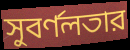
সুবর্ণলতার